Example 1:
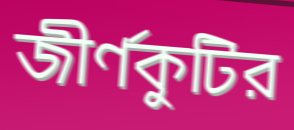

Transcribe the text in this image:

জীর্ণকুটির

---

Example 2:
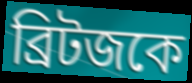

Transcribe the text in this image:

ব্রিটজকে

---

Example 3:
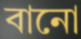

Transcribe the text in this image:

বানো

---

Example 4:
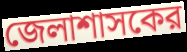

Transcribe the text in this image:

জেলাশাসকের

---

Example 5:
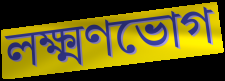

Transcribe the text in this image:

লক্ষ্মণভোগ